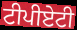
ਟੀਪੀਏਟੀ